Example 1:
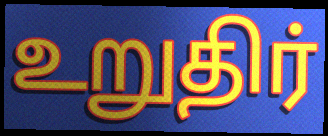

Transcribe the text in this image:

உறுதிர்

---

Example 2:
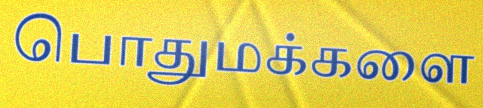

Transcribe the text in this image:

பொதுமக்களை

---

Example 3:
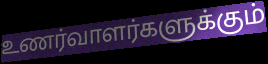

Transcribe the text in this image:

உணர்வாளர்களுக்கும்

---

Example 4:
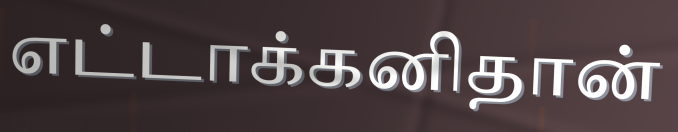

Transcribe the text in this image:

எட்டாக்கனிதான்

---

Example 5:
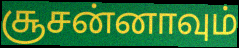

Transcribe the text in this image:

சூசன்னாவும்